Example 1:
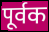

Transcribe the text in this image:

पूर्वक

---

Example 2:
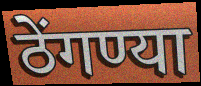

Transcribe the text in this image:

ठेंगण्या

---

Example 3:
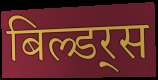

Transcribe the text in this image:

बिल्डर्स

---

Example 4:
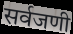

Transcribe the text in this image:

सर्वजणी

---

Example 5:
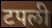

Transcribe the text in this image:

टपली